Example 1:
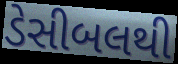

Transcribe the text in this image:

ડેસીબલથી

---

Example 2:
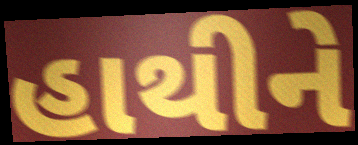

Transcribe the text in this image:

હાથીને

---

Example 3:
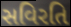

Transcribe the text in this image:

સવિરતિ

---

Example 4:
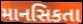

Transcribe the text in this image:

માનસિકતા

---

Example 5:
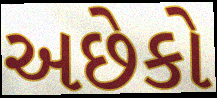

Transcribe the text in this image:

અછેકો